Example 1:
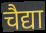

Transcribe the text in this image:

चैद्या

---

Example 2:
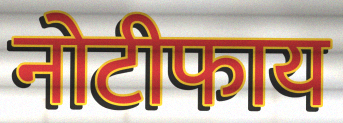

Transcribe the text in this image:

नोटीफाय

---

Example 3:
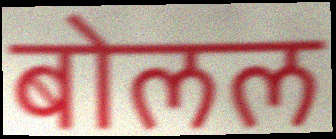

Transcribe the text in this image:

बोलल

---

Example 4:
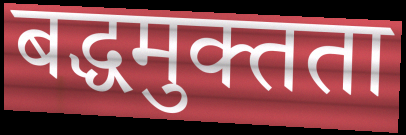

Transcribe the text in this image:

बद्धमुक्तता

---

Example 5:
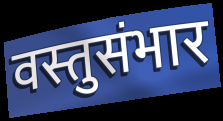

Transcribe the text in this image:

वस्तुसंभार